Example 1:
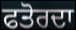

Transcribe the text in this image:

ਫਤੋਰਦਾ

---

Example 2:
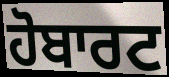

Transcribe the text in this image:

ਹੋਬਾਰਟ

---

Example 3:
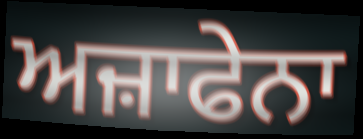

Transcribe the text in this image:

ਅਜ਼ਾਫੇਨਾ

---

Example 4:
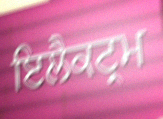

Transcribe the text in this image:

ਇਲੈਕਟ੍ਰਮ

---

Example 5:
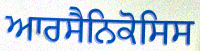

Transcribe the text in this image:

ਆਰਸੈਨਿਕੋਸਿਸ